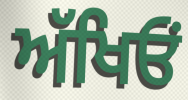
ਅੱਖਿਓਂ